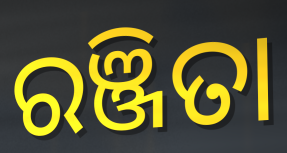
ରଞ୍ଜିତା